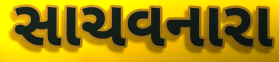
સાચવનારા